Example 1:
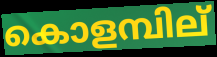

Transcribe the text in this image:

കൊളമ്പില്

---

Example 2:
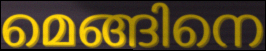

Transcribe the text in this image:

മെങ്ങിനെ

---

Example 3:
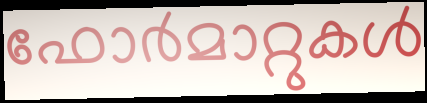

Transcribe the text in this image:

ഫോർമാറ്റുകൾ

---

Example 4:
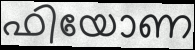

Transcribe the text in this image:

ഫിയോണ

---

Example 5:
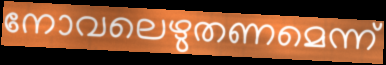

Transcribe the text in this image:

നോവലെഴുതണമെന്ന്